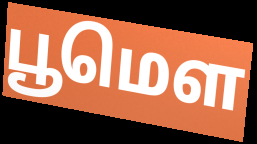
பூமௌ